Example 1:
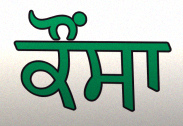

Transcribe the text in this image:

ਕੌਂਸਾ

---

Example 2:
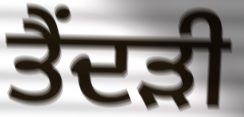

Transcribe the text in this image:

ਤੈਂਦੜੀ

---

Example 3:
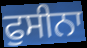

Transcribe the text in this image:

ਫੁਸੀਨਾ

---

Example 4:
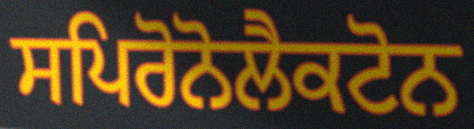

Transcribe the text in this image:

ਸਪਿਰੋਨੋਲੈਕਟੋਨ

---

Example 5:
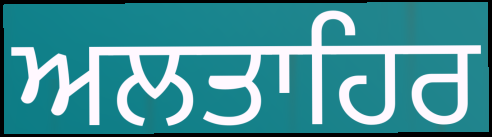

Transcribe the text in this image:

ਅਲਤਾਹਿਰ